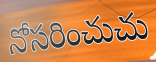
నోసరించుచు